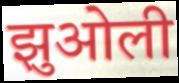
झुओली